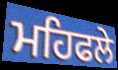
ਮਹਿਫਲੇ